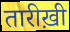
तारीख़ी